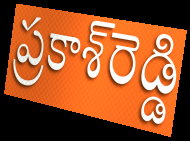
ప్రకాశ్‌రెడ్డి